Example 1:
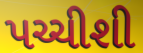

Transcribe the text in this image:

પચ્ચીશી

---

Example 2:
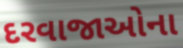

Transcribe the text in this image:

દરવાજાઓના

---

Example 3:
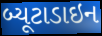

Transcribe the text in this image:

બ્યૂટાડાઇન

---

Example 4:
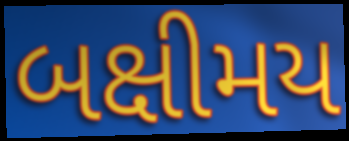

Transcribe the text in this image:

બક્ષીમય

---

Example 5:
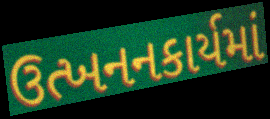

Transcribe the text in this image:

ઉત્ખનનકાર્યમાં